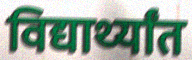
विद्यार्थ्यांत